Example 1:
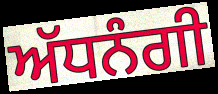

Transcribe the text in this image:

ਅੱਧਨੰਗੀ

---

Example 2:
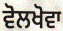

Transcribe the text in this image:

ਵੋਲਖੋਵਾ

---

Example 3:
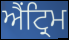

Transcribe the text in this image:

ਐਂਟ੍ਰਿਮ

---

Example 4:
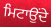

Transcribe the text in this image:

ਮਿਟਾਉਂਦੇ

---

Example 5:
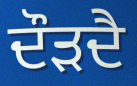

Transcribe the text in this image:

ਦੌੜਦੈ